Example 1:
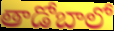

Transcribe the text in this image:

తాడోబాలో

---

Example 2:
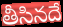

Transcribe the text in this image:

తీసినదే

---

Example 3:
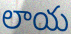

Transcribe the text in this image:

లాయ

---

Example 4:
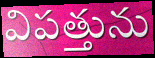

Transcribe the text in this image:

విపత్తును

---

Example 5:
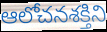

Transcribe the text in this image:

ఆలోచనశక్తిని